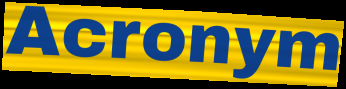
Acronym